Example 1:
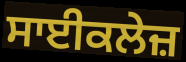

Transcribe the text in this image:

ਸਾਈਕਲੇਜ਼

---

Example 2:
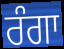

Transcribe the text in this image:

ਰੰਗਾ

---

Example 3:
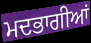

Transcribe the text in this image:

ਮਦਭਾਗੀਆਂ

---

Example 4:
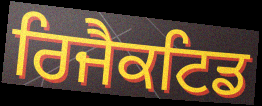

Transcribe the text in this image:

ਰਿਜੈਕਟਿਡ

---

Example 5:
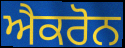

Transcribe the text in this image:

ਐਕਰੋਨ